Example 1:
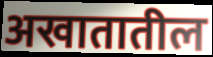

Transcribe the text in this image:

अखातातील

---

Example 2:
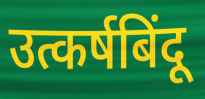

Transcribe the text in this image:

उत्कर्षबिंदू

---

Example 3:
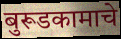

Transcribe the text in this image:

बुरूडकामाचे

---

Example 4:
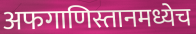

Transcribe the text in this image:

अफगाणिस्तानमध्येच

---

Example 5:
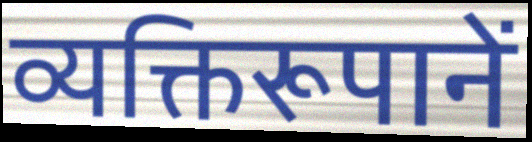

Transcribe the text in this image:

व्यक्तिरूपानें